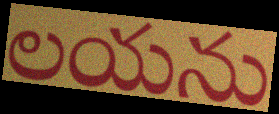
లయను